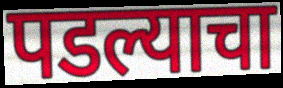
पडल्याचा